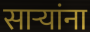
सार्‍यांना